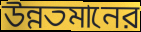
উন্নতমানের